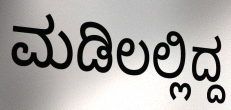
ಮಡಿಲಲ್ಲಿದ್ದ